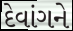
દેવાંગને